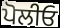
ਪੋਲੀਓ